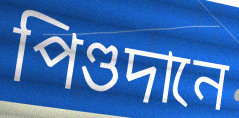
পিণ্ডদানে